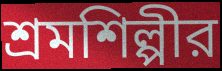
শ্রমশিল্পীর